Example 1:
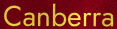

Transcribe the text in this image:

Canberra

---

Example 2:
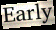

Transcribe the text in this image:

Early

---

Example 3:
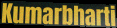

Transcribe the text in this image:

Kumarbharti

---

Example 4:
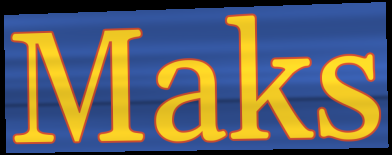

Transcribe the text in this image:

Maks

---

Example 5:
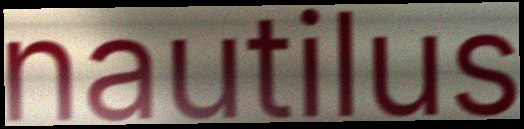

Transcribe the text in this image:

nautilus